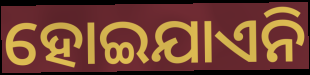
ହୋଇଯାଏନି